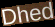
Dhed